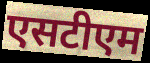
एसटीएम